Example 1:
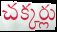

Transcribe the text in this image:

చక్కర్లు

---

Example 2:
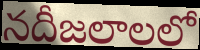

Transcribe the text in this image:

నదీజలాలలో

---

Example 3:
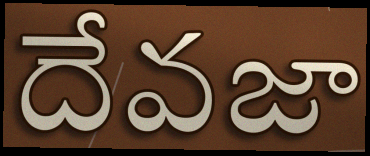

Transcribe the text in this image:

దేవజా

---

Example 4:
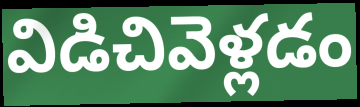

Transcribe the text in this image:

విడిచివెళ్లడం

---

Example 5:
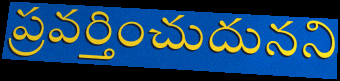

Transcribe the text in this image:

ప్రవర్తించుదునని